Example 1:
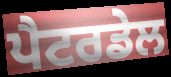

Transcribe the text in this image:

ਪੈਟਰਡੇਲ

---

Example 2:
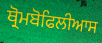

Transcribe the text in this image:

ਥ੍ਰੋਮਬੋਫਿਲੀਆਸ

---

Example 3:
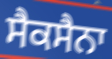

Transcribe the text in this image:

ਸੈਕਸੈਨਾ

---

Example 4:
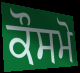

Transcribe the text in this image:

ਕੌਸਮੋ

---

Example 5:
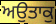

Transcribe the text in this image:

ਅਉਤਾਕੁ